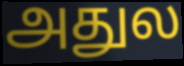
அதுல